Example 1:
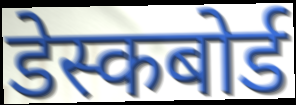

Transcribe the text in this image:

डेस्कबोर्ड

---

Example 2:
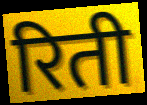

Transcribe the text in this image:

रिती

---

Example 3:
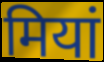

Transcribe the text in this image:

मियां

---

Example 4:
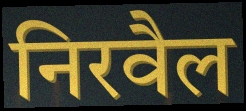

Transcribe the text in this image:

निरवैल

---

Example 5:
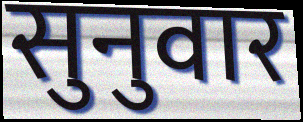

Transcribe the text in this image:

सुनुवार